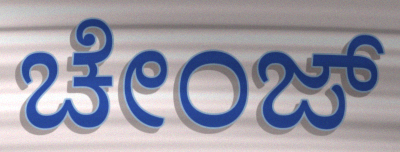
ಚೇಂಜ್